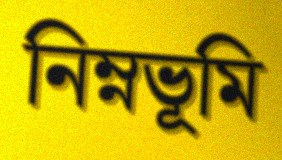
নিম্নভূমি